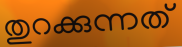
തുറക്കുന്നത്